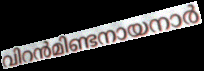
വിറൻമിണ്ടനായനാർ